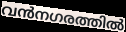
വൻനഗരത്തിൽ